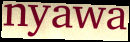
nyawa